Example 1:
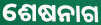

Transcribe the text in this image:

ଶେଷନାଗ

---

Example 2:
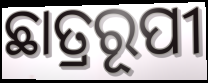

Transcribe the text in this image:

ଛାତ୍ରରୂପୀ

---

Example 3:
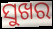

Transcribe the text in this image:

ସୁଖର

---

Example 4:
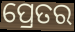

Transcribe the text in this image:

ପ୍ରେତର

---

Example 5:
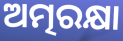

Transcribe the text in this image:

ଅତ୍ମରକ୍ଷା